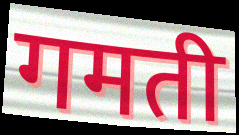
गमती